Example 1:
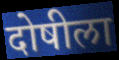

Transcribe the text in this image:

दोषीला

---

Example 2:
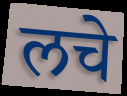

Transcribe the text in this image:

लचे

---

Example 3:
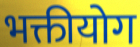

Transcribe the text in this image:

भक्तीयोग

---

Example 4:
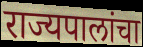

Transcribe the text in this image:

राज्यपालांचा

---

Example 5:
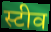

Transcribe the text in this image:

स्टीव